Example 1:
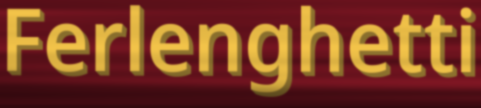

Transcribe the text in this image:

Ferlenghetti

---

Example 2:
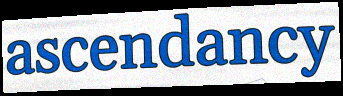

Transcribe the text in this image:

ascendancy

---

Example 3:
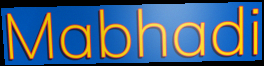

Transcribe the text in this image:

Mabhadi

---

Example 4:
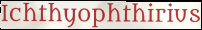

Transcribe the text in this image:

Ichthyophthirius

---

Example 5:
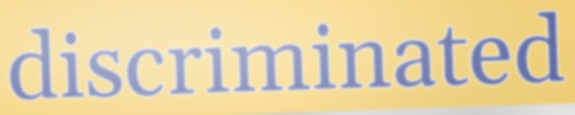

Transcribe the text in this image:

discriminated